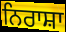
ਨਿਰਾਸ਼ਾ